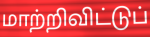
மாற்றிவிட்டுப்